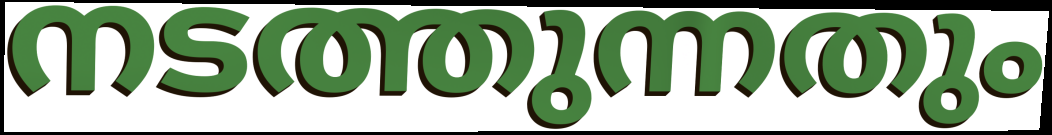
നടത്തുന്നതും